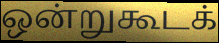
ஒன்றுகூடக்